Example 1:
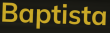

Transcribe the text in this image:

Baptista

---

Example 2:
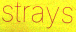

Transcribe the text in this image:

strays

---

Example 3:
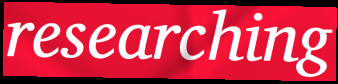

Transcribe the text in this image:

researching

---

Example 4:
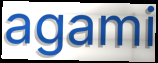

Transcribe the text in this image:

agami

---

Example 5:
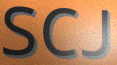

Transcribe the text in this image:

SCJ